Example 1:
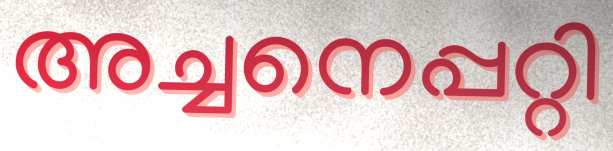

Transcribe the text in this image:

അച്ചനെപ്പറ്റി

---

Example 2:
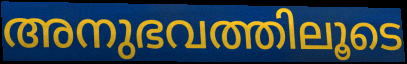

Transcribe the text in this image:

അനുഭവത്തിലൂടെ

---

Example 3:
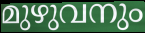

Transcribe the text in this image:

മുഴുവനും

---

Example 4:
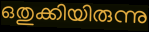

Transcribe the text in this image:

ഒതുക്കിയിരുന്നു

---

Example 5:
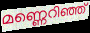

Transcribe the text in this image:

മണ്ണെറിഞ്ഞ്